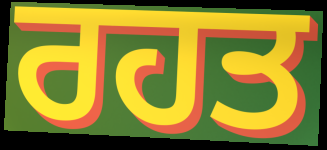
ਰਹਤ